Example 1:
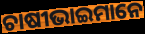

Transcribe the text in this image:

ଚାଷୀଭାଇମାନେ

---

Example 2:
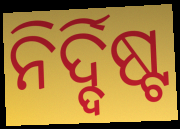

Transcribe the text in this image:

ନିର୍ଦ୍ଦିଷ୍ଟ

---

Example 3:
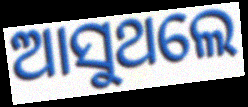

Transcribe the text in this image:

ଆସୁଥଲେ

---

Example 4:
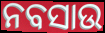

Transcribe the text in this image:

ନବସାଉ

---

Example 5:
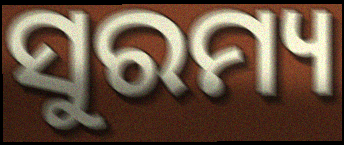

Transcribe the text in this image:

ସୁରମ୍ୟ